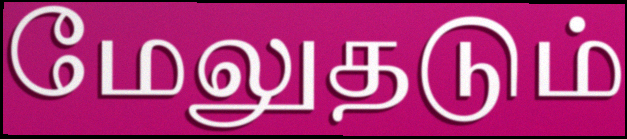
மேலுதடும்